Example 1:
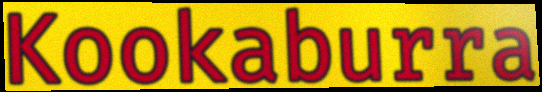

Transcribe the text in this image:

Kookaburra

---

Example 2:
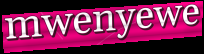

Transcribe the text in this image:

mwenyewe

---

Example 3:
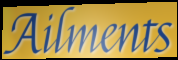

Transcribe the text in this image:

Ailments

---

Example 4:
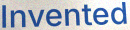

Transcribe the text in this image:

Invented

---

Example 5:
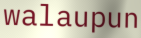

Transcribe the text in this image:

walaupun